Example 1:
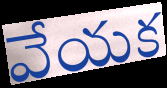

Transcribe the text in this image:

వేయక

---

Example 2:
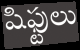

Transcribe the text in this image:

షిఫ్టులు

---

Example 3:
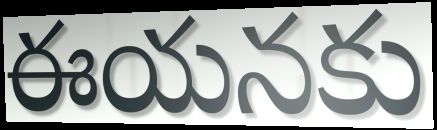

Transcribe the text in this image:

ఈయనకు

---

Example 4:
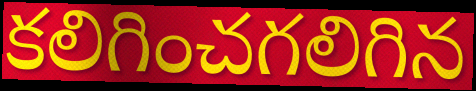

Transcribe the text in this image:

కలిగించగలిగిన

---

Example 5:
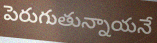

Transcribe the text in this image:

పెరుగుతున్నాయనే